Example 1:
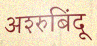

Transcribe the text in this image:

अश्रुबिंदू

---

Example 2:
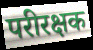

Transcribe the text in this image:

परीरक्षक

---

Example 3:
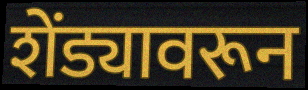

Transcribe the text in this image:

शेंड्यावरून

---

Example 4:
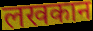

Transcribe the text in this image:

लखकान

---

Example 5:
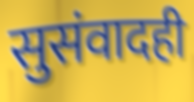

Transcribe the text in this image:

सुसंवादही